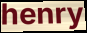
henry